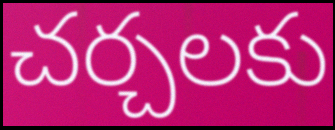
చర్చలకు